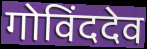
गोविंददेव